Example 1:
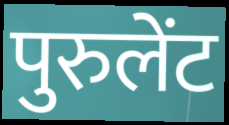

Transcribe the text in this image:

पुरुलेंट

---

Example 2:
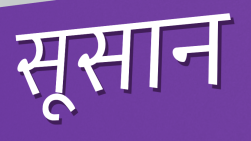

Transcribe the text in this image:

सूसान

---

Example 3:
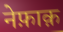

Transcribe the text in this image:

नेफ़ाक़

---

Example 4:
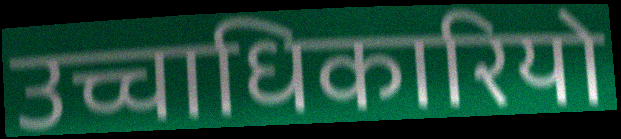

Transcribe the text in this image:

उच्चाधिकारियो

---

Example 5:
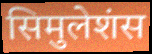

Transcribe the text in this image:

सिमुलेशंस